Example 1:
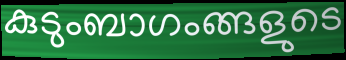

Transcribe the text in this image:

കുടുംബാഗംങ്ങളുടെ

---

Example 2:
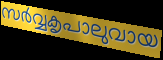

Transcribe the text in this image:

സർവ്വകൃപാലുവായ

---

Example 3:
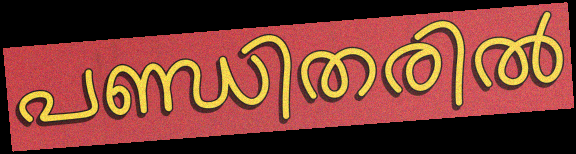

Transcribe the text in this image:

പണ്ഡിതരിൽ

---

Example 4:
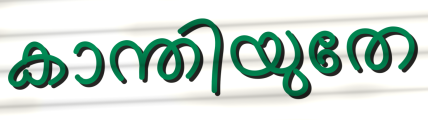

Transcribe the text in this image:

കാന്തിയുതേ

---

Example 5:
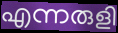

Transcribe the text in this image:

എന്നരുളി